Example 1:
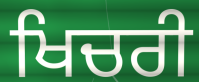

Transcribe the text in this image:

ਖਿਚਰੀ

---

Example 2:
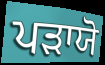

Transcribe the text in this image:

ਪੜਾਯੋ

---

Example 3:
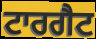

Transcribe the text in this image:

ਟਾਰਗੈਟ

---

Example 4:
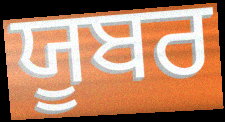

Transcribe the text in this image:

ਯੂਬਰ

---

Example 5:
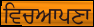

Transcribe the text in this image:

ਵਿਚਆਪਣਾ